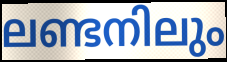
ലണ്ടനിലും